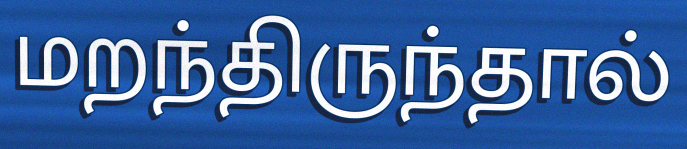
மறந்திருந்தால்